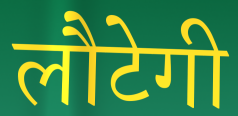
लौटेगी